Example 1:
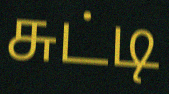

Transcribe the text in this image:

சுட்டி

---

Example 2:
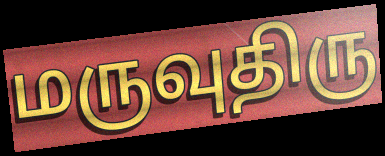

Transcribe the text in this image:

மருவுதிரு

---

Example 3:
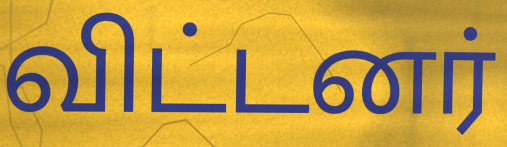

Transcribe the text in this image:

விட்டனர்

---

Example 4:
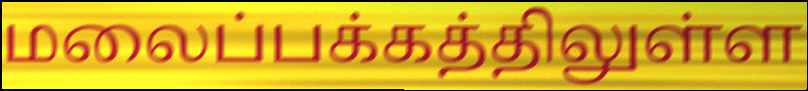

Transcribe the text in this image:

மலைப்பக்கத்திலுள்ள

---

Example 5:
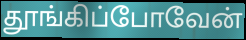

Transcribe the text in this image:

தூங்கிப்போவேன்